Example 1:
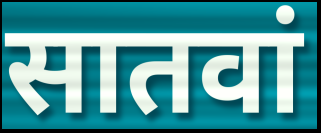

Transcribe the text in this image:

सातवां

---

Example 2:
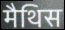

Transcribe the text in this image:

मैथिस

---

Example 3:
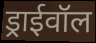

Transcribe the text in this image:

ड्राईवॉल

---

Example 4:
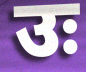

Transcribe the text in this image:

उः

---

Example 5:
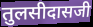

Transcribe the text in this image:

तुलसीदासजी